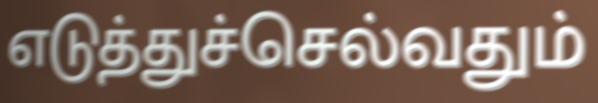
எடுத்துச்செல்வதும்